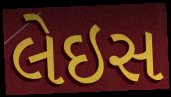
લેઇસ